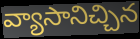
వ్యాసానిచ్చిన